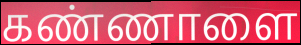
கண்ணாளை